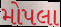
મોપલા